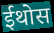
ईथोस